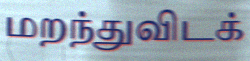
மறந்துவிடக்